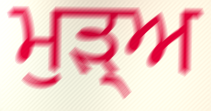
ਮੁਡ਼੍ਅ